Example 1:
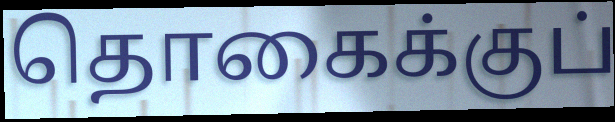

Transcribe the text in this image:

தொகைக்குப்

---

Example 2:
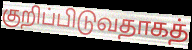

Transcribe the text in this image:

குறிப்பிடுவதாகத்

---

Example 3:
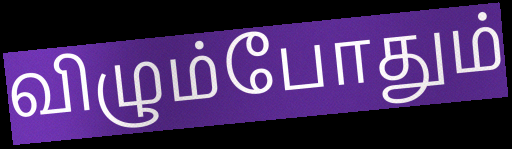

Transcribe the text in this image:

விழும்போதும்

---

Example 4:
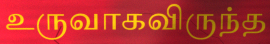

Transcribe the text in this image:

உருவாகவிருந்த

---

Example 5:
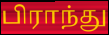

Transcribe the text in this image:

பிராந்து